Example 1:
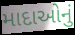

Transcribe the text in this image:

માદાઓનું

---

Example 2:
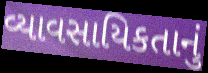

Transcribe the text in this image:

વ્યાવસાયિકતાનું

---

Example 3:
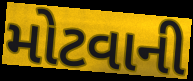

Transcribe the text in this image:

મોટવાની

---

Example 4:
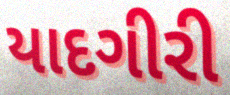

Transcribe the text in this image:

યાદગીરી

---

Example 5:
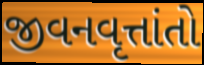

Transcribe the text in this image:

જીવનવૃત્તાંતો